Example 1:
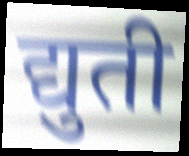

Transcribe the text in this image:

द्युती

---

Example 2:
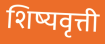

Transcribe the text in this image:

शिष्यवृत्ती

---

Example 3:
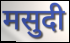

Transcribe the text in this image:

मसुदी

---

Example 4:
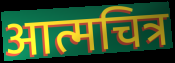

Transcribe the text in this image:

आत्मचित्र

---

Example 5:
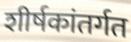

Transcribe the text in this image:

शीर्षकांतर्गत